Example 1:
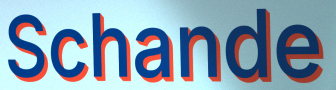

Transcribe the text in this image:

Schande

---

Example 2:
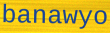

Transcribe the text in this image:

banawyo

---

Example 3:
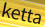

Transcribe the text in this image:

ketta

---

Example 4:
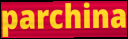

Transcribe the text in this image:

parchina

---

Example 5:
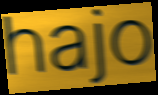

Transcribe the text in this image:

hajo